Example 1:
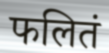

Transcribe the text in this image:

फलितं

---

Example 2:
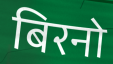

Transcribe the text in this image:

बिरनो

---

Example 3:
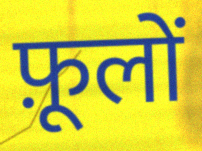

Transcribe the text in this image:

फ़ूलों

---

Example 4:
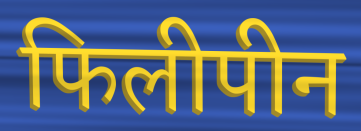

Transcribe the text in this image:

फिलीपीन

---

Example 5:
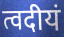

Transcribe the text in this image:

त्वदीयं